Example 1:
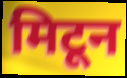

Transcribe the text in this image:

मिटून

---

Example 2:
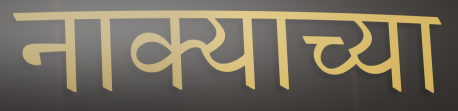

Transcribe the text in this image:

नाक्याच्या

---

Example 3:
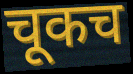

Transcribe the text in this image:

चूकच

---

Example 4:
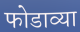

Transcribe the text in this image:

फोडाव्या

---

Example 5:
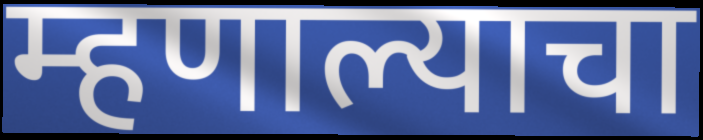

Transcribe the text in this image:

म्हणाल्याचा